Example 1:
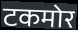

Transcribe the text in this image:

टकमोर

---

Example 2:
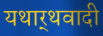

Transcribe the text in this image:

यथार्थवादी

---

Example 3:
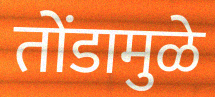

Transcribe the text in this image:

तोंडामुळे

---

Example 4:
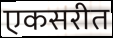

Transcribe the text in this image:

एकसरीत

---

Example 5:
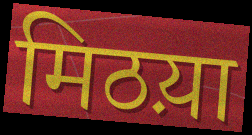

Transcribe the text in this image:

मिठय़ा